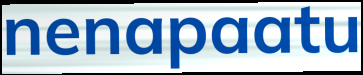
nenapaatu